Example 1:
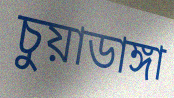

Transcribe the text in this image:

চুয়াডাঙ্গা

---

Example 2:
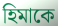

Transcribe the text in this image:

হিমাকে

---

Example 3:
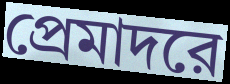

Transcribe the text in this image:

প্রেমাদরে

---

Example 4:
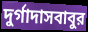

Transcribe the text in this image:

দুর্গাদাসবাবুর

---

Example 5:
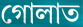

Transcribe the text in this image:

গোলাত